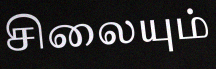
சிலையும்